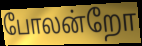
போலன்றோ